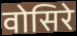
वोसिरे